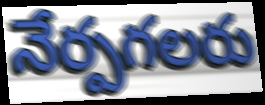
నేర్పగలరు